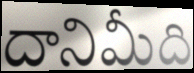
దానిమీది